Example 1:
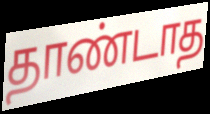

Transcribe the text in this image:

தாண்டாத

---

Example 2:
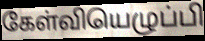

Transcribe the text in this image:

கேள்வியெழுப்பி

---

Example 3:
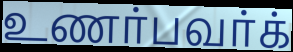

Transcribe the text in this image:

உணர்பவர்க்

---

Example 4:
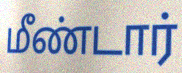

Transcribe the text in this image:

மீண்டார்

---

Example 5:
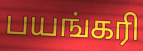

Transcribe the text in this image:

பயங்கரி